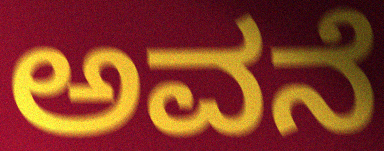
ಅವನೆ